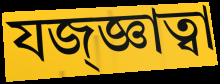
যজ্জ্ঞাত্বা